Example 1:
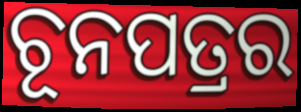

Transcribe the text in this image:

ଚୂନପତ୍ରର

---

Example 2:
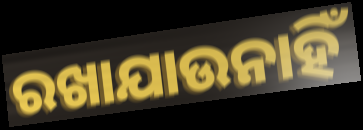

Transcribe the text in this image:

ରଖାଯାଉନାହିଁ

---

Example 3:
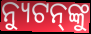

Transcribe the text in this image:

ନ୍ୟୁଟନ୍‌ଙ୍କୁ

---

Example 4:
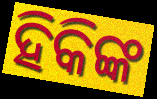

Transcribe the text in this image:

ହିକିଙ୍କ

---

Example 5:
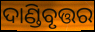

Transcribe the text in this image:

ଦାଣ୍ଡିବୃତ୍ତର